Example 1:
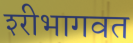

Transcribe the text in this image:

श्रीभागवत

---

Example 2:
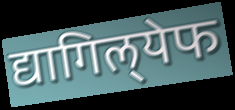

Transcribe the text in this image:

द्यागिल्येफ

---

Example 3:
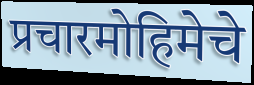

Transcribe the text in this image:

प्रचारमोहिमेचे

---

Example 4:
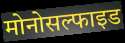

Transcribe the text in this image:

मोनोसल्फाइड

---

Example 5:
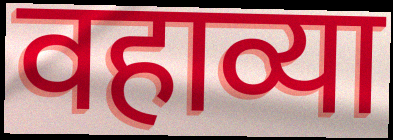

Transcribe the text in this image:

वहाव्या